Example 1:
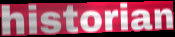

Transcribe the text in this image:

historian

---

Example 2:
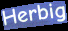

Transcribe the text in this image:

Herbig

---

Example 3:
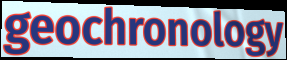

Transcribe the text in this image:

geochronology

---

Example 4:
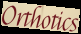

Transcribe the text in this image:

Orthotics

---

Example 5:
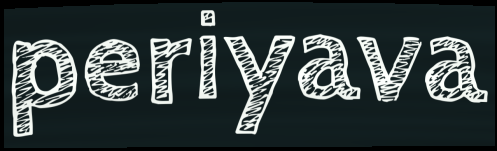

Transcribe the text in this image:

periyava